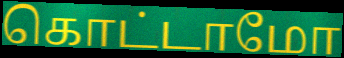
கொட்டாமோ